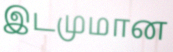
இடமுமான